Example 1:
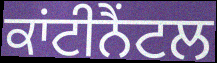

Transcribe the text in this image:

ਕਾਂਟੀਨੈਂਟਲ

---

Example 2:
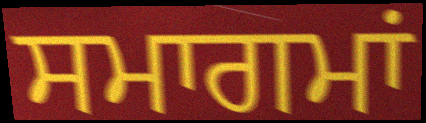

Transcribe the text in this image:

ਸਮਾਗਮਾਂ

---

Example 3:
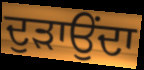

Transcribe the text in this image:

ਦੁੜਾਉਂਦਾ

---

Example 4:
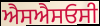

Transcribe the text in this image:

ਐਸਐਸਓਸੀ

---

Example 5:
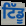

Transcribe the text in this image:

ਟਿੱਡੂ